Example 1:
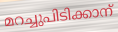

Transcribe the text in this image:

മറച്ചുപിടിക്കാന്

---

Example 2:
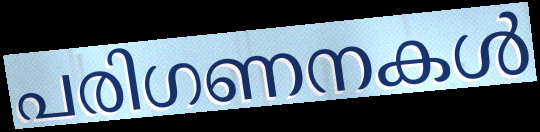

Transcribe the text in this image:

പരിഗണനകൾ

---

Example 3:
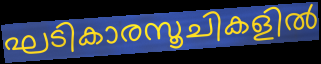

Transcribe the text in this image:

ഘടികാരസൂചികളിൽ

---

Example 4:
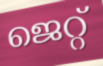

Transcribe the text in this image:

ജെറ്റ്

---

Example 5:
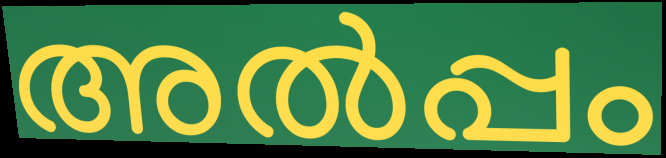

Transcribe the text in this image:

അൽപ്പം